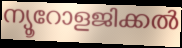
ന്യൂറോളജിക്കൽ